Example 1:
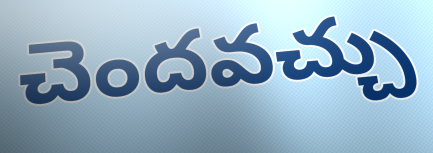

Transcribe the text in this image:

చెందవచ్చు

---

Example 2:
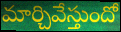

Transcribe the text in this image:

మార్చివేస్తుందో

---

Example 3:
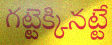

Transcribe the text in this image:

గట్టెక్కినట్టే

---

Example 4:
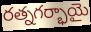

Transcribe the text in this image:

రత్నగర్భాయై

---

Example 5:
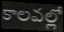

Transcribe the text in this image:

కాలవల్లో